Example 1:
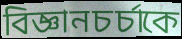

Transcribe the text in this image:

বিজ্ঞানচর্চাকে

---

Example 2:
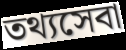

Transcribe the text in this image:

তথ্যসেবা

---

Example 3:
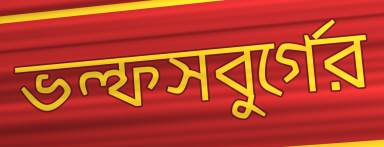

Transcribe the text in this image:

ভল্ফসবুর্গের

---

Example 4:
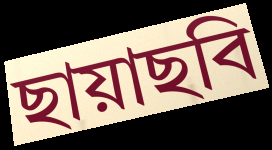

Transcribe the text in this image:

ছায়াছবি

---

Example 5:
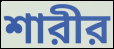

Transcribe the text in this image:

শারীর